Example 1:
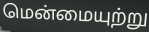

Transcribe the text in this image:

மென்மையுற்று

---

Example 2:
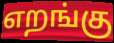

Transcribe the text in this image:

எறங்கு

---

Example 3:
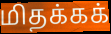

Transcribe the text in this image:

மிதக்கக்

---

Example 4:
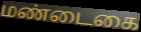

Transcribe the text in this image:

மண்டைகை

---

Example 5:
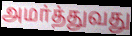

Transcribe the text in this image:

அமர்த்துவது